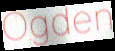
Ogden